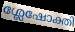
ശ്ലേഷോക്തി